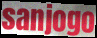
sanjogo